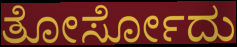
ತೋರ್ಸೋದು